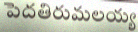
పెదతిరుమలయ్య